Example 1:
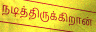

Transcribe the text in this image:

நடித்திருக்கிறான்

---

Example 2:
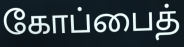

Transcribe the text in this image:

கோப்பைத்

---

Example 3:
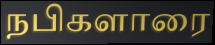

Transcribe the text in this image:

நபிகளாரை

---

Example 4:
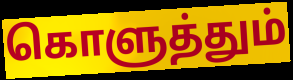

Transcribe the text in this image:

கொளுத்தும்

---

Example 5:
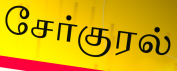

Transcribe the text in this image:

சேர்குரல்